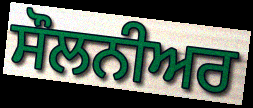
ਸੌਲਨੀਅਰ